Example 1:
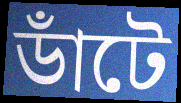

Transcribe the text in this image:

ডাঁটে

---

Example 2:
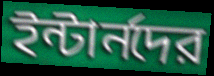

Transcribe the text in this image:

ইন্টার্নদের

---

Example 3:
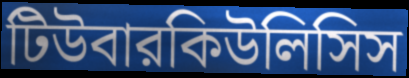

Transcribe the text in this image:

টিউবারকিউলিসিস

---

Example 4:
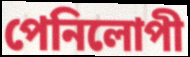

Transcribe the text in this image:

পেনিলোপী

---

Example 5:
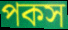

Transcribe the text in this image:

পকস